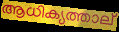
ആധിക്യത്താല്